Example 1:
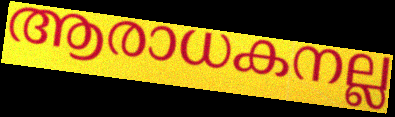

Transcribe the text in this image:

ആരാധകനല്ല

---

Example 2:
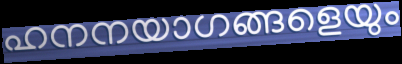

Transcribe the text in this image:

ഹനനയാഗങ്ങളെയും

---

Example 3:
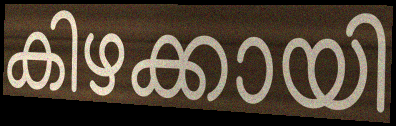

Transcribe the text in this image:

കിഴക്കായി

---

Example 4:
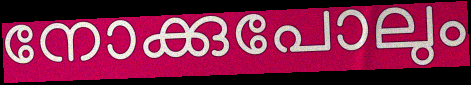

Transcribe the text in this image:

നോക്കുപോലും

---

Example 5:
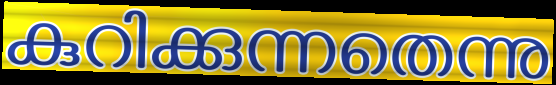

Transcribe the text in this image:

കുറിക്കുന്നതെന്നു